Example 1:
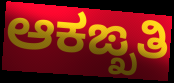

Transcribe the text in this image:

ಆಕಙ್ಖತಿ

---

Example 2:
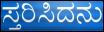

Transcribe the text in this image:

ಸ್ತರಿಸಿದನು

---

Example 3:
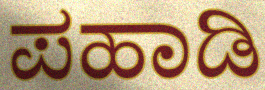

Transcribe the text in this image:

ಪಹಾಡಿ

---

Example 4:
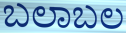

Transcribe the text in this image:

ಬಲಾಬಲ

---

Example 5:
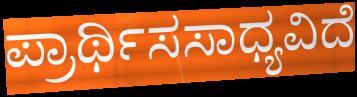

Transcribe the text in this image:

ಪ್ರಾರ್ಥಿಸಸಾಧ್ಯವಿದೆ